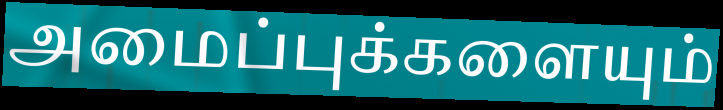
அமைப்புக்களையும்